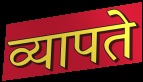
व्यापते